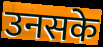
उनसके